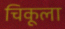
चिकूला